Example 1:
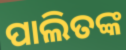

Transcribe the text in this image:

ପାଲିତଙ୍କ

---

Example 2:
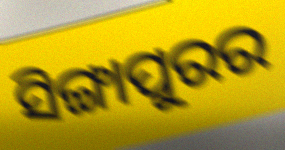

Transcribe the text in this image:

ସିଙ୍ଗାପୁରର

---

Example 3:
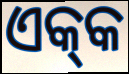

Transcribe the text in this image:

ଏକ୍‍କ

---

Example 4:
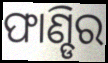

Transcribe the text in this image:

ଫାଣ୍ଡିର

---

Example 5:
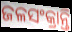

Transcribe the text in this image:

ଜଳସଂକ୍ରାନ୍ତି